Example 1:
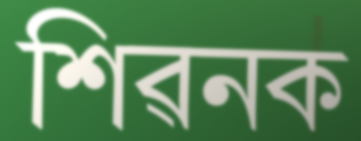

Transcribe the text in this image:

শিৱনক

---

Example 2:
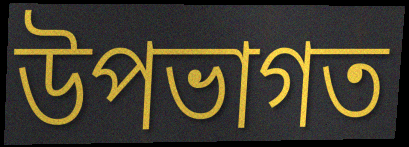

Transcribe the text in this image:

উপভাগত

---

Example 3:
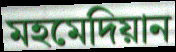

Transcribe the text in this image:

মহমেদিয়ান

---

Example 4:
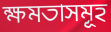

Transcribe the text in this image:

ক্ষমতাসমূহ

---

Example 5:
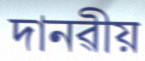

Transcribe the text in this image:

দানৱীয়